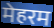
मेहरम